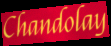
Chandolay